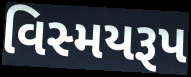
વિસ્મયરૂપ